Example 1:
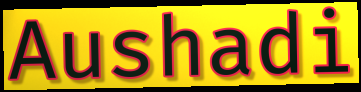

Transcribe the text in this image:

Aushadi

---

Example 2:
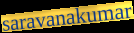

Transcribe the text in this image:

saravanakumar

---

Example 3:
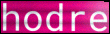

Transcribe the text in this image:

hodre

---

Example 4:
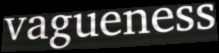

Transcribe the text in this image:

vagueness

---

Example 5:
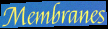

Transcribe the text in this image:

Membranes